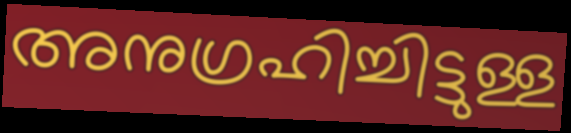
അനുഗ്രഹിച്ചിട്ടുള്ള